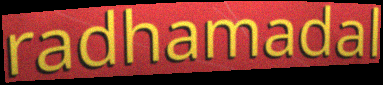
radhamadal